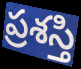
ప్రశస్తి